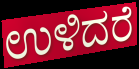
ಉಳಿದರೆ